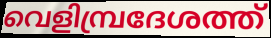
വെളിമ്പ്രദേശത്ത്